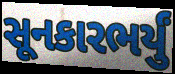
સૂનકારભર્યું